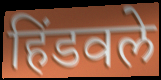
हिंडवले